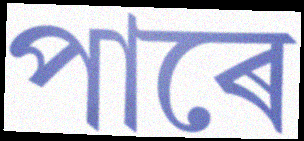
পাৰে